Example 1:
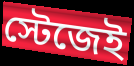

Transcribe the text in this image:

স্টেজেই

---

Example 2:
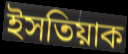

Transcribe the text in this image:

ইসতিয়াক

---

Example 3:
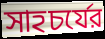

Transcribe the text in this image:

সাহচর্যের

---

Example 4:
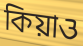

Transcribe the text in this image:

কিয়াও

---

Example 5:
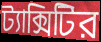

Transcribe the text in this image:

ট্যাক্সিটির